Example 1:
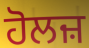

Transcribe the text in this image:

ਹੋਲਜ਼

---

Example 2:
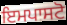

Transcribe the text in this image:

ਇਮਪਾਸਟੋ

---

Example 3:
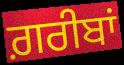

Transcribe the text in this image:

ਗ਼ਰੀਬਾਂ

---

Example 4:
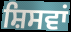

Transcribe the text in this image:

ਸ਼ਿਸਵਾਂ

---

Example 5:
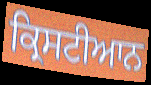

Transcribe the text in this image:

ਕ੍ਰਿਸਟੀਆਨ